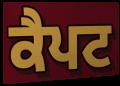
ਕੈਪਟ